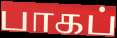
பாகப்